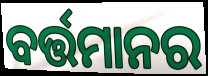
ବର୍ତ୍ତମାନର